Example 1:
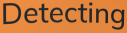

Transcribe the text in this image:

Detecting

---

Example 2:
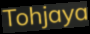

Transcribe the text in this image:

Tohjaya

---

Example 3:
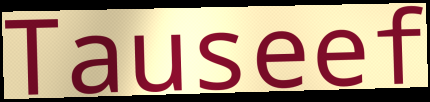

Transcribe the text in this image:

Tauseef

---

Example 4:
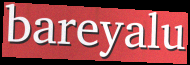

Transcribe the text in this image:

bareyalu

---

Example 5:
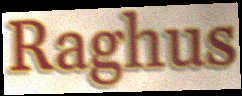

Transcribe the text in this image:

Raghus